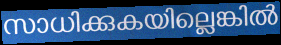
സാധിക്കുകയില്ലെങ്കിൽ